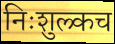
निःशुल्कच